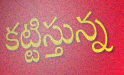
కట్టిస్తున్న